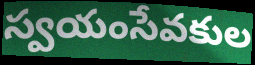
స్వయంసేవకుల